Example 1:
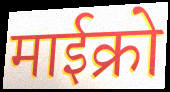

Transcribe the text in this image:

माईक्रो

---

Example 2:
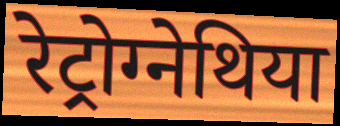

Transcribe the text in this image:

रेट्रोग्नेथिया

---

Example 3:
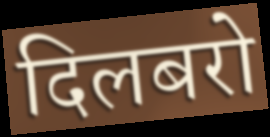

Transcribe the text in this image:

दिलबरो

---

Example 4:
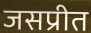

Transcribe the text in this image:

जसप्रीत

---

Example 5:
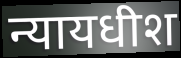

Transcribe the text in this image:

न्यायधीश